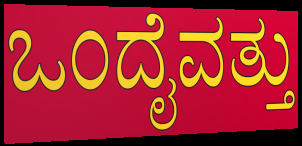
ಒಂದೈವತ್ತು